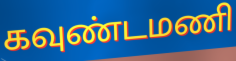
கவுண்டமணி